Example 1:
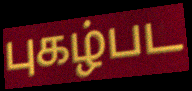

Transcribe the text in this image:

புகழ்பட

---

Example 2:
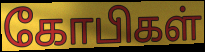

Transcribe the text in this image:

கோபிகள்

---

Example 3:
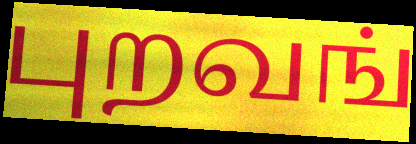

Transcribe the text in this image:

புறவங்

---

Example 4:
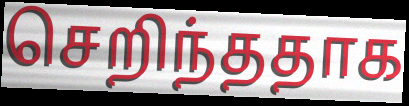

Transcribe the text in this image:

செறிந்ததாக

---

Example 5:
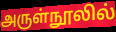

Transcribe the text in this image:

அருள்நூலில்